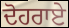
ਦੋਹਰਾਏ